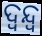
ଦ୍ବନ୍ଦ୍ବ